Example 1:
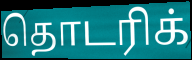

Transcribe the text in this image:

தொடரிக்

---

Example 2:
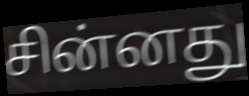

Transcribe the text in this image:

சின்னது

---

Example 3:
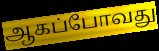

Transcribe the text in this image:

ஆகப்போவது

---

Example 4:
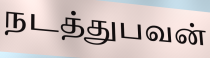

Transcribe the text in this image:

நடத்துபவன்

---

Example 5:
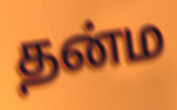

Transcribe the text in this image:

தன்ம